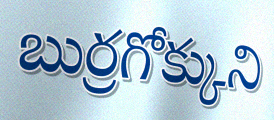
బుర్రగోక్కుని